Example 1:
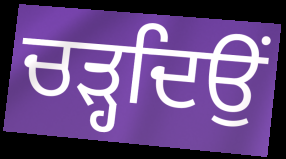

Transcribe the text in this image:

ਚੜ੍ਹ੍ਹਦਿਉਂ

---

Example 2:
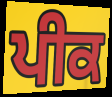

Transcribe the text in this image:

ਪੀਕ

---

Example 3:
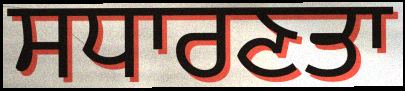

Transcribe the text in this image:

ਸਧਾਰਣਤਾ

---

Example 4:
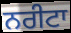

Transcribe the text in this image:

ਨਰੀਟਾ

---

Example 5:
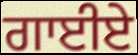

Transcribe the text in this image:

ਗਾਈਏ